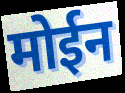
मोईन